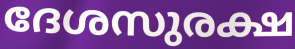
ദേശസുരക്ഷ